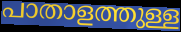
പാതാളത്തുള്ള